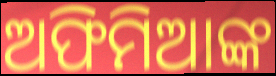
ଅଫିମିଆଙ୍କ